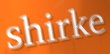
shirke